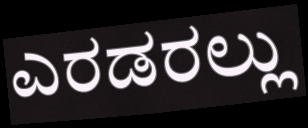
ಎರಡರಲ್ಲು